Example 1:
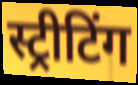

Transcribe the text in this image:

स्ट्रीटिंग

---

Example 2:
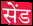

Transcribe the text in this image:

सेंड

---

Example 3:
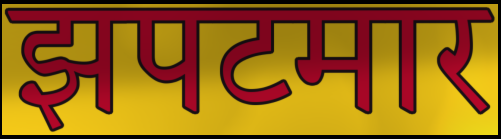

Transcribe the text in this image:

झपटमार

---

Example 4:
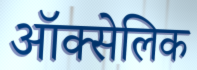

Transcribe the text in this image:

ऑक्सेलिक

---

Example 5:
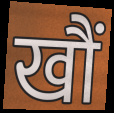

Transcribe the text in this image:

खौं